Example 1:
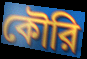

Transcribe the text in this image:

কৌরি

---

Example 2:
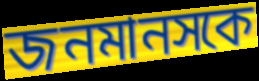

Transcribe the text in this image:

জনমানসকে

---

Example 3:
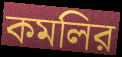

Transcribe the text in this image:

কমলির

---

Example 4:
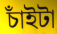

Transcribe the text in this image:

চাঁইটা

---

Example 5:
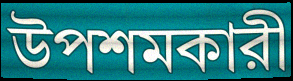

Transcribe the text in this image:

উপশমকারী